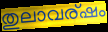
തുലാവര്ഷം